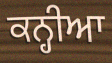
ਕਨ੍ਹੀਆ